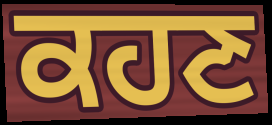
ਕਹਣ